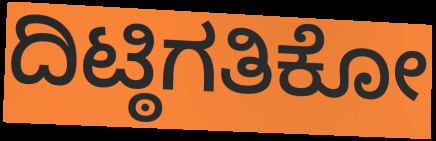
ದಿಟ್ಠಿಗತಿಕೋ